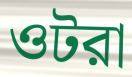
ওটরা